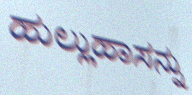
ಹುಲ್ಲುಹಾಸನ್ನು